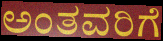
ಅಂತವರಿಗೆ